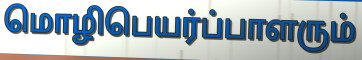
மொழிபெயர்ப்பாளரும்